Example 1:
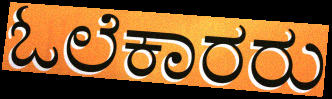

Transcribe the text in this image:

ಓಲೆಕಾರರು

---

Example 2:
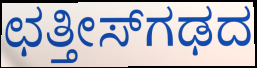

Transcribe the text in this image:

ಛತ್ತೀಸ್‌ಗಢದ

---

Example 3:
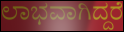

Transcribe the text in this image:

ಲಾಭವಾಗಿದ್ದರೆ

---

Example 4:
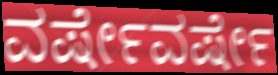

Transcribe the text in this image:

ವರ್ಷೇವರ್ಷೇ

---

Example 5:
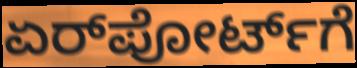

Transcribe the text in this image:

ಏರ್‌ಪೋರ್ಟ್‌ಗೆ